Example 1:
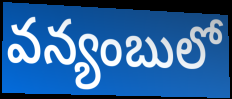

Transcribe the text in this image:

వన్యంబులో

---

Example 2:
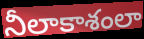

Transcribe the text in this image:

నీలాకాశంలా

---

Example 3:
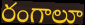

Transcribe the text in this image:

రంగాలూ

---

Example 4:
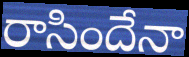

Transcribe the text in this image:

రాసిందేనా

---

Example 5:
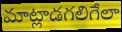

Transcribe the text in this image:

మాట్లాడగలిగేలా